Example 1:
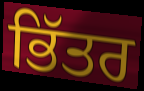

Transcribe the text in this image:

ਭਿੱਤਰ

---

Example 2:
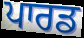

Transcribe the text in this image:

ਪਾਰਡ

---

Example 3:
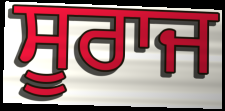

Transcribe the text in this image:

ਸੂਰਾਜ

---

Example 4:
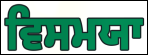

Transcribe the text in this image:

ਵਿਸਮਯਾ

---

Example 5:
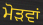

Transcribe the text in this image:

ਮੋੜਵਾਂ